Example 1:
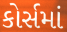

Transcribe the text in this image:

કોર્સમાં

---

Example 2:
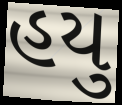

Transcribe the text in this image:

હયુ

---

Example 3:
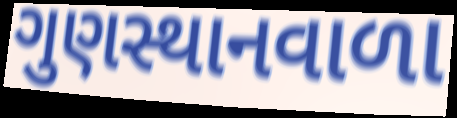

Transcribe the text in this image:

ગુણસ્થાનવાળા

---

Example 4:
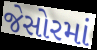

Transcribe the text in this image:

જેસોરમાં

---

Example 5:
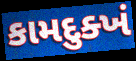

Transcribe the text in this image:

કામદુક્ખં